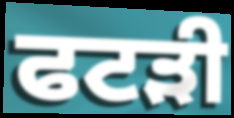
ਫਟੜੀ